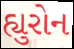
હ્યુરોન